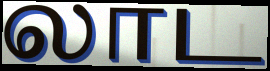
லாட